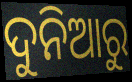
ଦୁନିଆରୁ